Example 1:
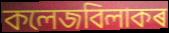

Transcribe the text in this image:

কলেজবিলাকৰ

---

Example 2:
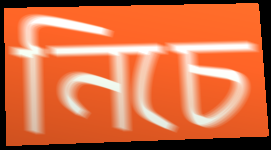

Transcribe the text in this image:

নিচে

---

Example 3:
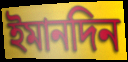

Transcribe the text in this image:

ইমানদিন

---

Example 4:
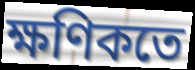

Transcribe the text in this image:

ক্ষণিকতে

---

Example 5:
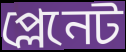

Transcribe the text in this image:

প্লেনেট